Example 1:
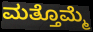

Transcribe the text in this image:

ಮತ್ತೊಮ್ಮೆ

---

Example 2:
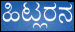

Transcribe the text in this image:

ಹಿಟ್ಲರನ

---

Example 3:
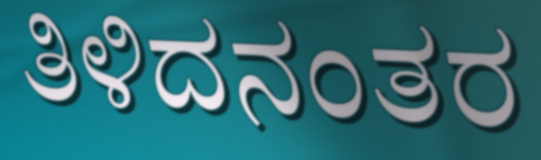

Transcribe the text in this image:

ತಿಳಿದನಂತರ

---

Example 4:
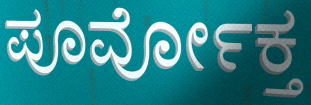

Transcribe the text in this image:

ಪೂರ್ವೋಕ್ತ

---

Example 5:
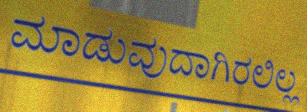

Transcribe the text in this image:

ಮಾಡುವುದಾಗಿರಲಿಲ್ಲ